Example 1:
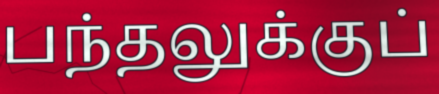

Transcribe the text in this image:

பந்தலுக்குப்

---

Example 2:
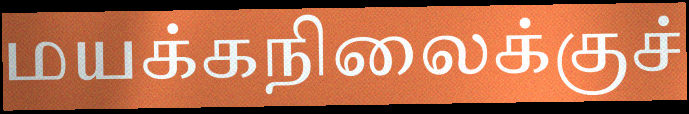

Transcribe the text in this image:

மயக்கநிலைக்குச்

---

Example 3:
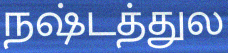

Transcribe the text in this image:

நஷ்டத்துல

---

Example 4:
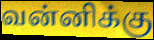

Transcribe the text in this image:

வன்னிக்கு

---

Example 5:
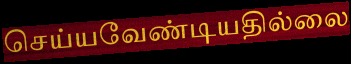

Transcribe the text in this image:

செய்யவேண்டியதில்லை